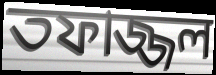
তফাজ্জল